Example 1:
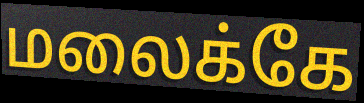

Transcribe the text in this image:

மலைக்கே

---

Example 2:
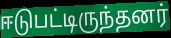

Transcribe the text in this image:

ஈடுபட்டிருந்தனர்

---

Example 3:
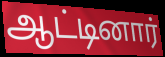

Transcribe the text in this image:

ஆட்டினார்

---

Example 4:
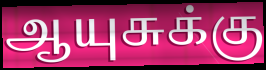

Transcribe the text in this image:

ஆயுசுக்கு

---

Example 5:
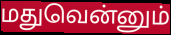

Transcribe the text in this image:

மதுவென்னும்